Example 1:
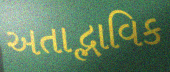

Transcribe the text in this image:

અતાદ્ભાવિક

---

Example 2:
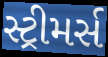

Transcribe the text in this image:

સ્ટ્રીમર્સ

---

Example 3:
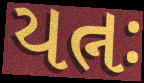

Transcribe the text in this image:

યત્નઃ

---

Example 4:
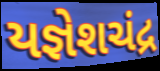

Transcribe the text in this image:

યજ્ઞેશચંદ્ર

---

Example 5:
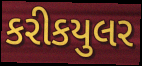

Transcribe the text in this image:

કરીકયુલર